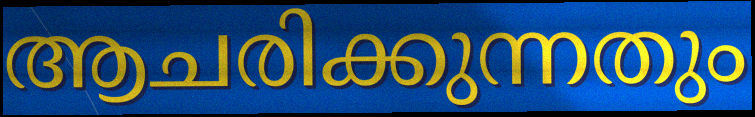
ആചരിക്കുന്നതും